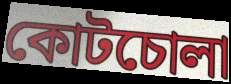
কোটচোলা